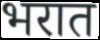
भरात